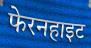
फेरनहाइट